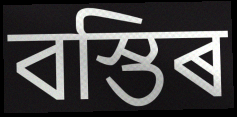
বস্তিৰ